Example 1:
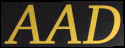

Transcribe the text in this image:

AAD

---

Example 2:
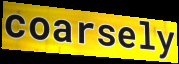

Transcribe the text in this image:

coarsely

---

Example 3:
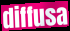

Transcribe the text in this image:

diffusa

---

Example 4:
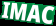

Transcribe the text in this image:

IMAC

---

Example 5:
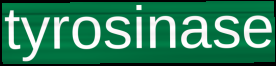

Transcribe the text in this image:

tyrosinase